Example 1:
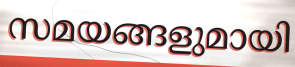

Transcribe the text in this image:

സമയങ്ങളുമായി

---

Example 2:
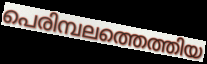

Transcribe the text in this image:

പെരിമ്പലത്തെത്തിയ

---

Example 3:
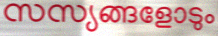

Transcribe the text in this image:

സസ്യങ്ങളോടും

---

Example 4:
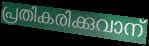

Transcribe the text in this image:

പ്രതികരിക്കുവാന്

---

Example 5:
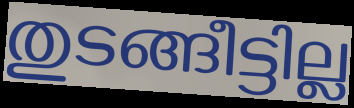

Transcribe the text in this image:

തുടങ്ങീട്ടില്ല